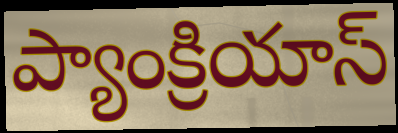
ప్యాంక్రియాస్